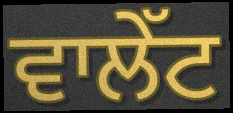
ਵਾਲੇੱਟ